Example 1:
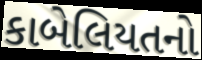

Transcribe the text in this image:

કાબેલિયતનો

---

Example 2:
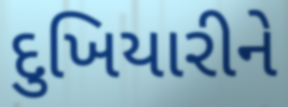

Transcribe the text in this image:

દુખિયારીને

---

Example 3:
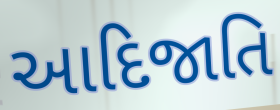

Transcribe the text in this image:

આદિજાતિ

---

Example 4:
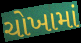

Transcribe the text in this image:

ચોખામાં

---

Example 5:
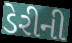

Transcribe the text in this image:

ડેરીની